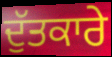
ਦੁੱਤਕਾਰੇ